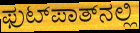
ಫುಟ್‌ಪಾತ್‌ನಲ್ಲಿ